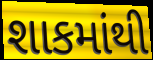
શાકમાંથી